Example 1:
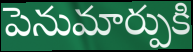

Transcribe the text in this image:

పెనుమార్పుకి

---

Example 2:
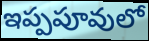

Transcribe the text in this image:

ఇప్పపూవులో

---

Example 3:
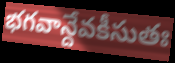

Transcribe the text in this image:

భగవాన్దేవకీసుతః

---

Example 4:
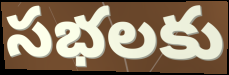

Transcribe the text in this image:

సభలకు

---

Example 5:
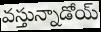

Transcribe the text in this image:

వస్తున్నాడోయ్